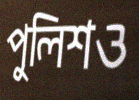
পুলিশও